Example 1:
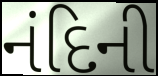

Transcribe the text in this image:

નંદિની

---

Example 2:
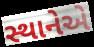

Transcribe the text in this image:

સ્થાનેએ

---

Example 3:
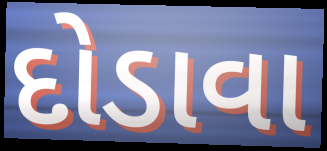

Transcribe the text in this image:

દોડાવા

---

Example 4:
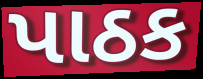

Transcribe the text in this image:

પાઠક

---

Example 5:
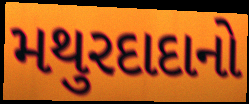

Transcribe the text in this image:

મથુરદાદાનો